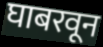
घाबरवून